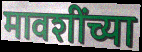
मावशींच्या